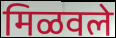
मिळवले